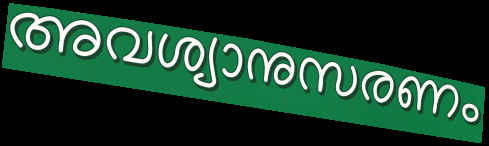
അവശ്യാനുസരണം